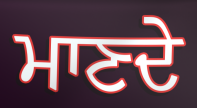
ਮਾਣਦੇ